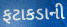
ફટાકડાની